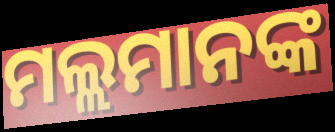
ମଲ୍ଲମାନଙ୍କ